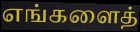
எங்களைத்